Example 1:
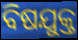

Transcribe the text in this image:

ବିଷଯୁକ୍ତ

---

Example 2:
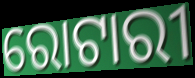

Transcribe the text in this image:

ରୋଟାରୀ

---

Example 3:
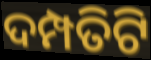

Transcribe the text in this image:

ଦମ୍ପତିଟି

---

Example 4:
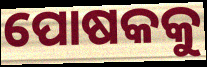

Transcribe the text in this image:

ପୋଷକକୁ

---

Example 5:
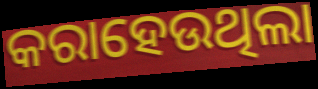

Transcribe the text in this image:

କରାହେଉଥିଲା